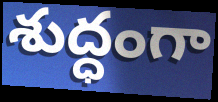
శుద్ధంగా